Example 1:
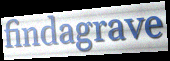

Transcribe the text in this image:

findagrave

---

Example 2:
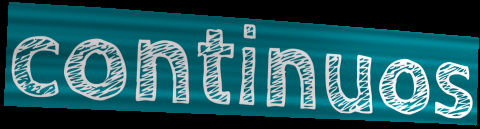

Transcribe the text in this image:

continuos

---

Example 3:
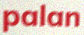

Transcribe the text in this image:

palan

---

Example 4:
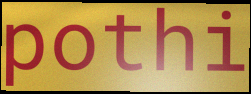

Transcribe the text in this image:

pothi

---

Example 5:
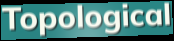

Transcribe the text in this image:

Topological